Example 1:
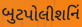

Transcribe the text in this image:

બુટપોલીશનિં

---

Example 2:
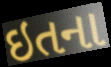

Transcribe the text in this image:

ઇતના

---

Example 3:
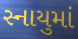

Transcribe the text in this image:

સ્નાયુમાં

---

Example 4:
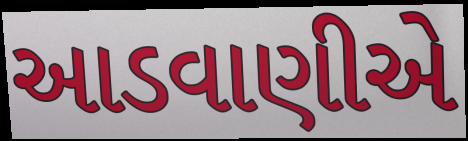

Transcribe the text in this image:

આડવાણીએ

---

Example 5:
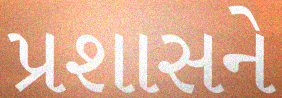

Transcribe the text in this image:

પ્રશાસને